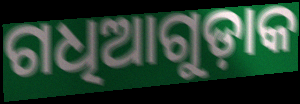
ଗଧିଆଗୁଡ଼ାକ